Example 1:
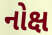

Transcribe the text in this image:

નોક્ષ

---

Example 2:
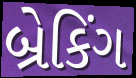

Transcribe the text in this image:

બ્રેકિંગ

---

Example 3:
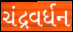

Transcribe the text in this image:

ચંદ્રવર્ધન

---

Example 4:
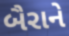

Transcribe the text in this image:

બૈરાને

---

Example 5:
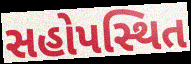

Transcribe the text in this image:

સહોપસ્થિત